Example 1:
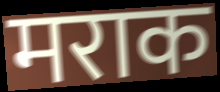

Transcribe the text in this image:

मराक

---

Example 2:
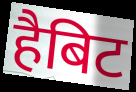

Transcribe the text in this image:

हैबिट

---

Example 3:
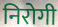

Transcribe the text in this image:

निरोगी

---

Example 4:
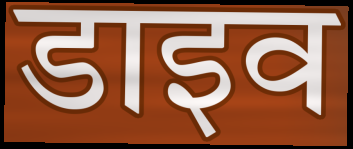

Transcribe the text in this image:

डाइव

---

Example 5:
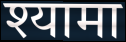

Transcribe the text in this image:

श्‍यामा